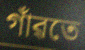
গাঁৱতে